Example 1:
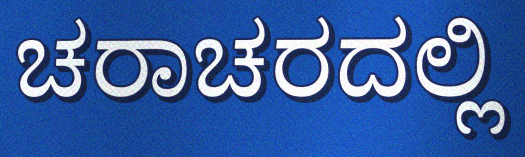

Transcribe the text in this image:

ಚರಾಚರದಲ್ಲಿ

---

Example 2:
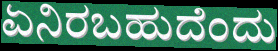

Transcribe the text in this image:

ಏನಿರಬಹುದೆಂದು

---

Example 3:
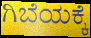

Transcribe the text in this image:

ಗಿಬೆಯಕ್ಕೆ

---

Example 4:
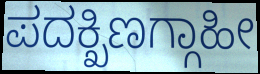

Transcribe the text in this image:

ಪದಕ್ಖಿಣಗ್ಗಾಹೀ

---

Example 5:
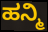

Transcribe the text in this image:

ಹನ್ಮಿ